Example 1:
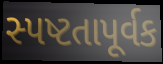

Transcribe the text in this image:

સ્પષ્ટતાપૂર્વક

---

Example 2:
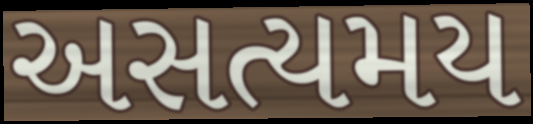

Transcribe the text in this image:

અસત્યમય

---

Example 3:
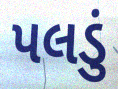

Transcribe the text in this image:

પલડું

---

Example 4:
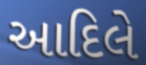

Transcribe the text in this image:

આદિલે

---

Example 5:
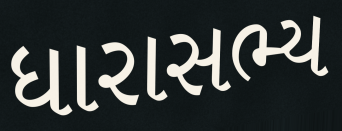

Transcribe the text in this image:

ધારાસભ્ય